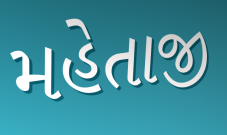
મહેતાજી